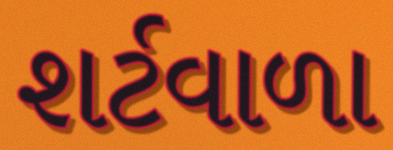
શર્ટવાળા